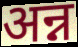
अन्न